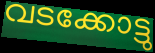
വടക്കോട്ടു